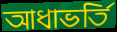
আধাভর্তি